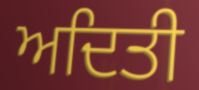
ਅਦਿਤੀ